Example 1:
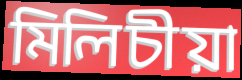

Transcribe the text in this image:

মিলিচীয়া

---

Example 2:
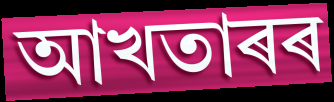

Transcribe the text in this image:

আখতাৰৰ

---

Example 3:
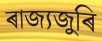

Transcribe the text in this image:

ৰাজ্যজুৰি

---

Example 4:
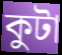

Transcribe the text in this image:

কুটা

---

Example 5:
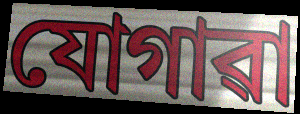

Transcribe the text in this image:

যোগাৱা